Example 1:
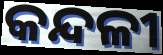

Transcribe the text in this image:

କନ୍ଦଳୀ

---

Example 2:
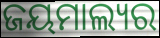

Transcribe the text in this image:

ଜୟମାଲ୍ୟର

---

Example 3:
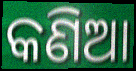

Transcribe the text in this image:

କଣିଆ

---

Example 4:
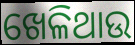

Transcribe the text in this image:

ଖେଳିଥାଉ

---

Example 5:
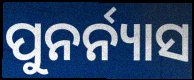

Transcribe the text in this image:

ପୁନର୍ନ୍ୟାସ